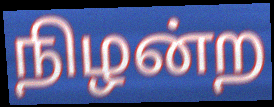
நிழன்ற